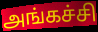
அங்கச்சி